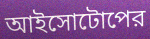
আইসোটোপের